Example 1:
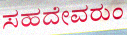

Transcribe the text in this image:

ಸಹದೇವರುಂ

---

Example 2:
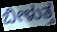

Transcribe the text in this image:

ಬೀಳುತ್ತ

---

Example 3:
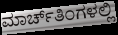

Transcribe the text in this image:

ಮಾರ್ಚ್‌ತಿಂಗಳಲ್ಲಿ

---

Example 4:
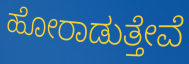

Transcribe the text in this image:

ಹೋರಾಡುತ್ತೇವೆ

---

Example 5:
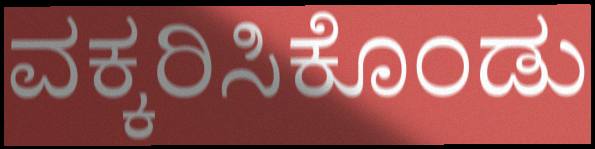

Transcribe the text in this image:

ವಕ್ಕರಿಸಿಕೊಂಡು